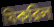
যিকরিল